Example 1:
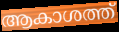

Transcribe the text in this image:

ആകാശത്ത്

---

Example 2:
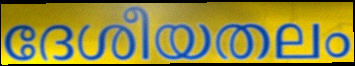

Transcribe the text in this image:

ദേശീയതലം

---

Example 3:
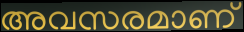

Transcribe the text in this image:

അവസരമാണ്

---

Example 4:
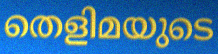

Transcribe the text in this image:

തെളിമയുടെ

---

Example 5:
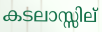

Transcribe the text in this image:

കടലാസ്സില്